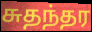
சுதந்தர